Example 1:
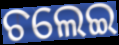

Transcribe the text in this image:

ଚଲେଇ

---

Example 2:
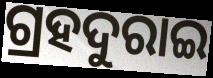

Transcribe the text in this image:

ଗ୍ରହଦୁରାଇ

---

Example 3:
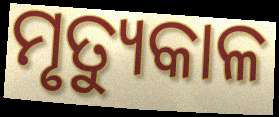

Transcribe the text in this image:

ମୃତ୍ୟୁକାଳ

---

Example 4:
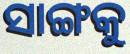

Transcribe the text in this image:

ସାଙ୍ଗକୁ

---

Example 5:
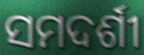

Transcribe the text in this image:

ସମଦର୍ଶୀ